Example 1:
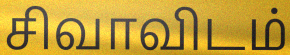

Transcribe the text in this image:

சிவாவிடம்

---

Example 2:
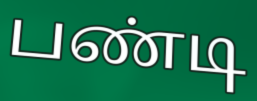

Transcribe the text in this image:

பண்டி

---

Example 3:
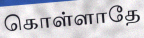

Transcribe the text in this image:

கொள்ளாதே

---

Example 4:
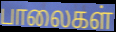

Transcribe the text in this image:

பாலைகள்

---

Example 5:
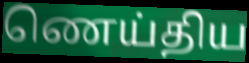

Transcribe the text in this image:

ணெய்திய